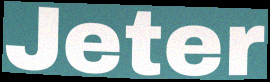
Jeter